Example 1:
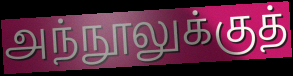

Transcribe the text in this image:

அந்நூலுக்குத்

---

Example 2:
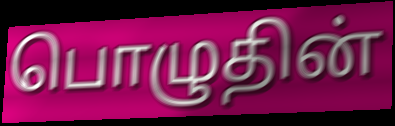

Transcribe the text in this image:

பொழுதின்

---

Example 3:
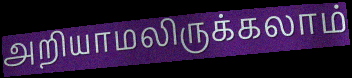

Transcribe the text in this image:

அறியாமலிருக்கலாம்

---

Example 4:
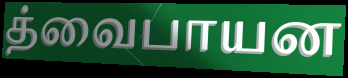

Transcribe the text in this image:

த்வைபாயன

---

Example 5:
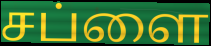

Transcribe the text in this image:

சப்ளை